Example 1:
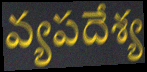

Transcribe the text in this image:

వ్యపదేశ్య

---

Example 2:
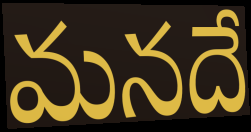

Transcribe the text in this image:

మనదే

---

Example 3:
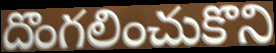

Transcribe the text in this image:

దొంగలించుకొని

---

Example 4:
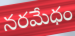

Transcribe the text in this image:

నరమేధం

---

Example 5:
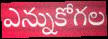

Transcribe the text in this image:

ఎన్నుకోగల